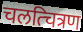
चलत्चित्रण